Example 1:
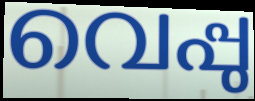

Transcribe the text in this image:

വെപ്പു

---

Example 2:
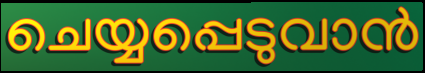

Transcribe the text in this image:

ചെയ്യപ്പെടുവാൻ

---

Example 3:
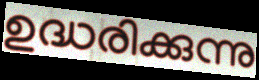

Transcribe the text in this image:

ഉദ്ധരിക്കുന്നു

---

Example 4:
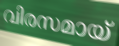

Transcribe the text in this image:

വിരസമായ്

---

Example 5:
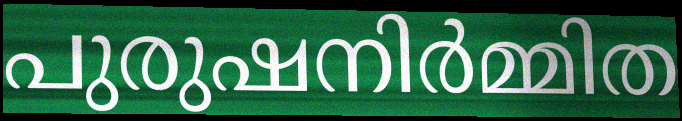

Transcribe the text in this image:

പുരുഷനിർമ്മിത